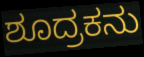
ಶೂದ್ರಕನು